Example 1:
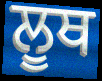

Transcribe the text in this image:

ਲੂਥ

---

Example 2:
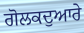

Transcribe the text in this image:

ਗੋਲਕਦੁਆਰੇ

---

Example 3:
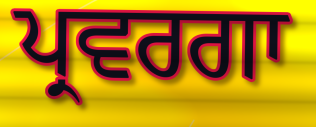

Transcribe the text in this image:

ਪ੍ਰਵਰਗਾ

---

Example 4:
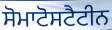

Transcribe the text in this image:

ਸੋਮਾਟੋਸਟੈਟੀਨ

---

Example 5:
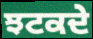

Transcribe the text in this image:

ਝਟਕਦੇ